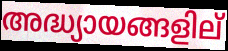
അദ്ധ്യായങ്ങളില്